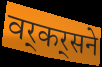
वर्कर्सने